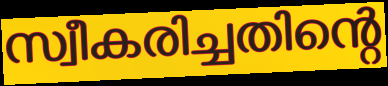
സ്വീകരിച്ചതിന്റെ